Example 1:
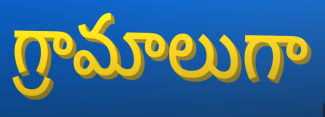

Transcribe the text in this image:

గ్రామాలుగా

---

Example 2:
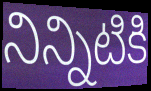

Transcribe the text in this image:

నిన్నిటికి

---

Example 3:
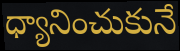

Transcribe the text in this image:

ధ్యానించుకునే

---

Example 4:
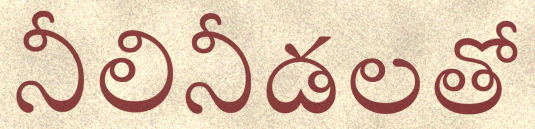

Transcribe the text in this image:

నీలినీడలతో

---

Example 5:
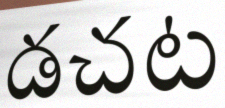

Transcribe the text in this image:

డచట